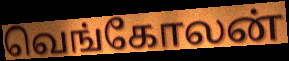
வெங்கோலன்